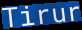
Tirur